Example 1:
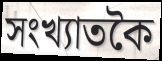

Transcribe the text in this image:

সংখ্যাতকৈ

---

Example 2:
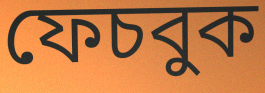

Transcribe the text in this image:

ফেচবুক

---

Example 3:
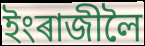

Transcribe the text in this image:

ইংৰাজীলৈ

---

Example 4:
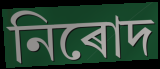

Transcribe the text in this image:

নিৰোদ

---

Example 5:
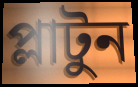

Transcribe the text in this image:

প্লাটুন